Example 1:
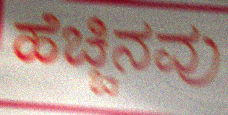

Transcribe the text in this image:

ಹೆಚ್ಚಿನವು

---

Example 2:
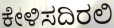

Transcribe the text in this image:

ಕೇಳಿಸದಿರಲಿ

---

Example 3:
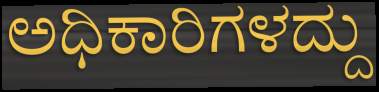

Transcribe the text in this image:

ಅಧಿಕಾರಿಗಳದ್ದು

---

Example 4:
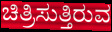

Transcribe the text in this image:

ಚಿತ್ರಿಸುತ್ತಿರುವ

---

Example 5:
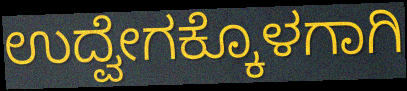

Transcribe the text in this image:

ಉದ್ವೇಗಕ್ಕೊಳಗಾಗಿ